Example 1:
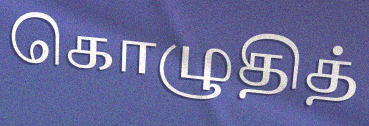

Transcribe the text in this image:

கொழுதித்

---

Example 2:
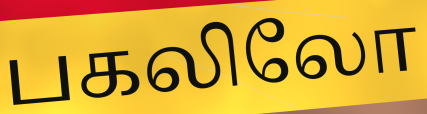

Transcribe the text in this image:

பகலிலோ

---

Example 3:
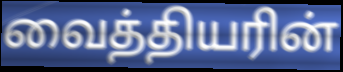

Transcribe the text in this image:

வைத்தியரின்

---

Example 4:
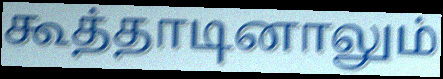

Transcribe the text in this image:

கூத்தாடினாலும்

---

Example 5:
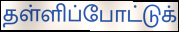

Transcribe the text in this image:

தள்ளிப்போட்டுக்